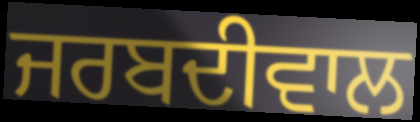
ਜਰਬਦੀਵਾਲ